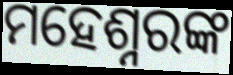
ମହେଶ୍ନରଙ୍କ